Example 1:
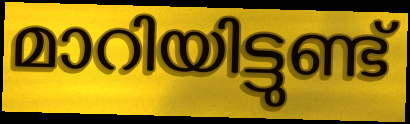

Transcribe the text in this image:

മാറിയിട്ടുണ്ട്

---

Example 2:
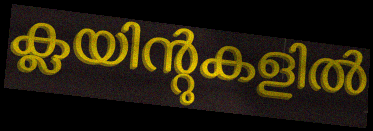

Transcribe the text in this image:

ക്ലയിന്റുകളിൽ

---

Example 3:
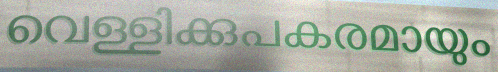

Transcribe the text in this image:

വെള്ളിക്കുപകരമായും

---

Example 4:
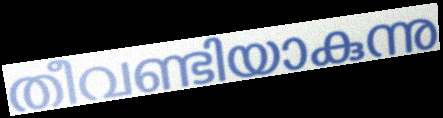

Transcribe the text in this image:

തീവണ്ടിയാകുന്നു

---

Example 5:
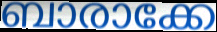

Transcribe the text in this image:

ബാരാക്കേ